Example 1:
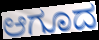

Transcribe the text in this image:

ಆಗೂದ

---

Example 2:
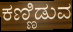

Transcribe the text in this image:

ಕಣ್ಣಿಡುವ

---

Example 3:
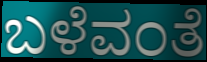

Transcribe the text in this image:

ಬಳೆವಂತೆ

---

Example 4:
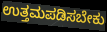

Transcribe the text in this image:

ಉತ್ತಮಪಡಿಸಬೇಕು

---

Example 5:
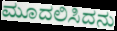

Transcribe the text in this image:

ಮೂದಲಿಸಿದನು